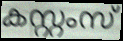
കസ്റ്റംസ്